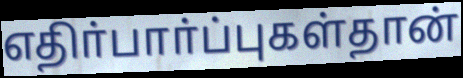
எதிர்பார்ப்புகள்தான்